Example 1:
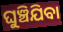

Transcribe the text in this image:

ଘୁଞ୍ଚିଯିବା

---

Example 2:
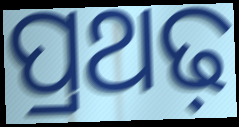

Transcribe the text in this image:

ପ୍ରଥଢ଼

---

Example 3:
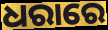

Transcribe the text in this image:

ଧରାରେ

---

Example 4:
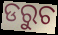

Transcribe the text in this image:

ଡରୁଚ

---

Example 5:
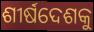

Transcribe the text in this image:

ଶୀର୍ଷଦେଶକୁ